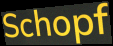
Schopf